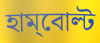
হাম্‌বোল্ট